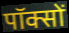
पॉक्सों